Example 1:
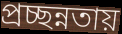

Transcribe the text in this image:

প্রচ্ছন্নতায়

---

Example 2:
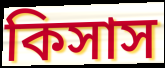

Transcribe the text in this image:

কিসাস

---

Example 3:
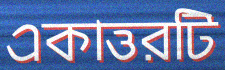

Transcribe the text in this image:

একাত্তরটি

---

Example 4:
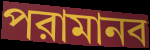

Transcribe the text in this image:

পরামানব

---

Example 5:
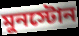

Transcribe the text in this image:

মুনস্টোন